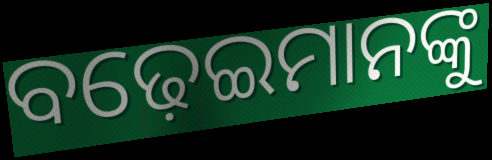
ବଢ଼େଇମାନଙ୍କୁ